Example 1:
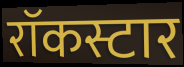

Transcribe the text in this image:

रॉकस्टार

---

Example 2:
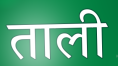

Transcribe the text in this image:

ताली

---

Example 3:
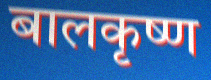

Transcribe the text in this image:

बालकृष्ण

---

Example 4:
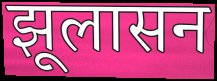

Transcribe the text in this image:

झूलासन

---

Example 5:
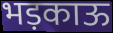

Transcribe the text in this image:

भड़काऊ